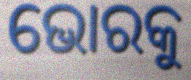
ଭୋରକୁ